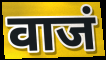
वाजं